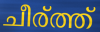
ചീര്ത്ത്